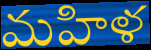
మహిళ